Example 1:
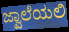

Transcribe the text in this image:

ಜ್ವಾಲೆಯಲಿ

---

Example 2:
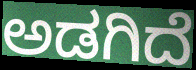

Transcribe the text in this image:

ಅಡಗಿದೆ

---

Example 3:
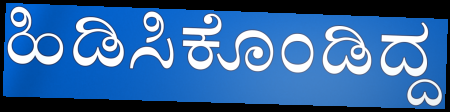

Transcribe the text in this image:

ಹಿಡಿಸಿಕೊಂಡಿದ್ದ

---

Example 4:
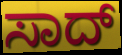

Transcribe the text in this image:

ಸಾದ್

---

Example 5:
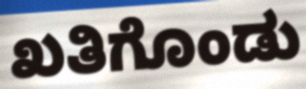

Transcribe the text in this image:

ಖತಿಗೊಂಡು